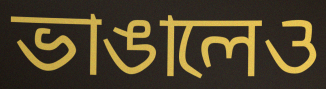
ভাঙালেও